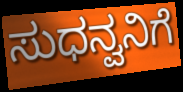
ಸುಧನ್ವನಿಗೆ